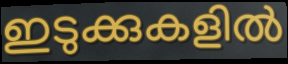
ഇടുക്കുകളിൽ